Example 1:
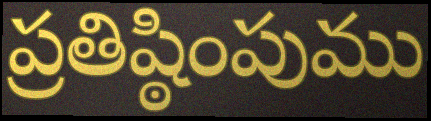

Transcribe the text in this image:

ప్రతిష్ఠింపుము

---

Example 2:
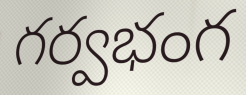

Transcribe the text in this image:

గర్వభంగ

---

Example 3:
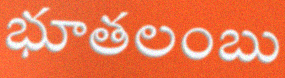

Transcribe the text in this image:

భూతలంబు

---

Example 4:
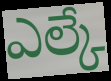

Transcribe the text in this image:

ఎల్కే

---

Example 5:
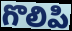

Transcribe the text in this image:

గొలిపి